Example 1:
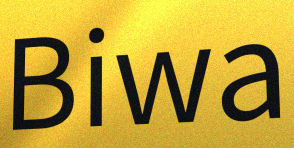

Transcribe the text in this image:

Biwa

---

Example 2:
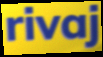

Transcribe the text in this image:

rivaj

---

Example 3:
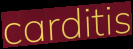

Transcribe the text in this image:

carditis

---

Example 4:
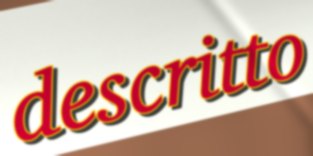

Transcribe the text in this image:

descritto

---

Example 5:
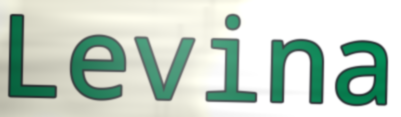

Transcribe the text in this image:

Levina